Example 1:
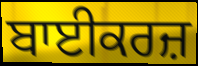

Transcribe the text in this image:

ਬਾਈਕਰਜ਼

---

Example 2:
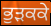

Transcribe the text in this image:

ਭੁੜਕਕੇ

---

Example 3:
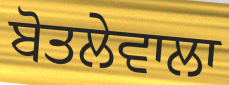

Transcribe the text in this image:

ਬੋਤਲੇਵਾਲਾ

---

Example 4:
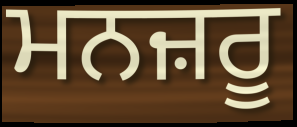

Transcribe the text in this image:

ਮਨਜ਼ਰੂ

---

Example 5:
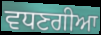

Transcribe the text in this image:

ਵਧਣਗੀਆ